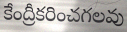
కేంద్రీకరించగలవు